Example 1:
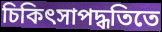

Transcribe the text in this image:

চিকিৎসাপদ্ধতিতে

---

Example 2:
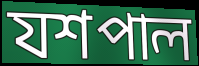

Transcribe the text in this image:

যশপাল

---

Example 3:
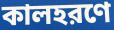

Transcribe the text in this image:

কালহরণে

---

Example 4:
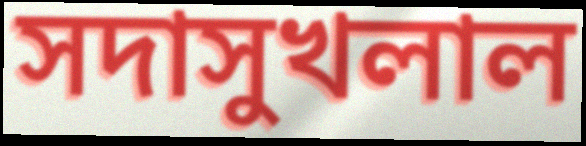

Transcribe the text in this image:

সদাসুখলাল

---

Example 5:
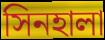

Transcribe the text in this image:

সিনহালা